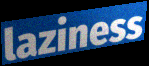
laziness